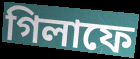
গিলাফে